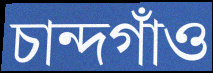
চান্দগাঁও